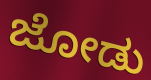
ಜೋಡು